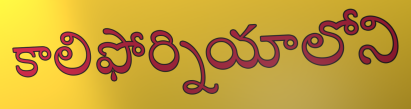
కాలిఫోర్నియాలోని